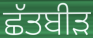
ਛੱਤਬੀੜ